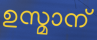
ഉസ്മാന്